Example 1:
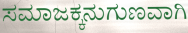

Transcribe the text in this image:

ಸಮಾಜಕ್ಕನುಗುಣವಾಗಿ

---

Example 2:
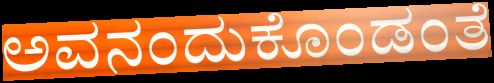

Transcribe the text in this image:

ಅವನಂದುಕೊಂಡಂತೆ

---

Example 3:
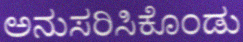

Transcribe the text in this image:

ಅನುಸರಿಸಿಕೊಂಡು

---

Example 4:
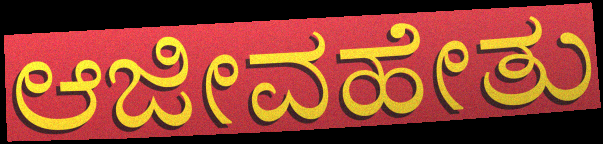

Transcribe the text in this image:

ಆಜೀವಹೇತು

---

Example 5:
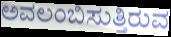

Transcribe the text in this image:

ಅವಲಂಬಿಸುತ್ತಿರುವ